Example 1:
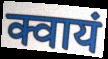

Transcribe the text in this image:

क्वायं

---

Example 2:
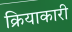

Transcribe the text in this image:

क्रियाकारी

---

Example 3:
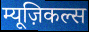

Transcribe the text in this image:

म्यूज़िकल्स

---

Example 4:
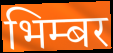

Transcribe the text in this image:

भिम्बर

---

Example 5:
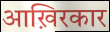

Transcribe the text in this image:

आख़िरकार